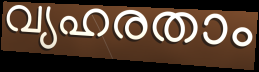
വ്യഹരതാം